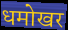
धमोखर